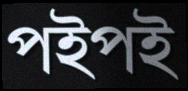
পইপই